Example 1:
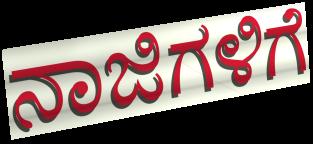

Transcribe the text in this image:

ನಾಜಿಗಳಿಗೆ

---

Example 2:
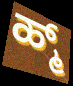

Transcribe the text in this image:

ಹ್ಮ್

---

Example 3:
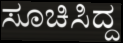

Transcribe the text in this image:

ಸೂಚಿಸಿದ್ದ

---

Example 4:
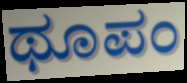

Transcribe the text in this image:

ಥೂಪಂ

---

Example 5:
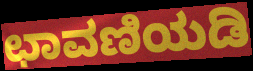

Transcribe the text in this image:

ಛಾವಣಿಯಡಿ